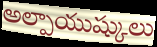
అల్పాయుష్కులు